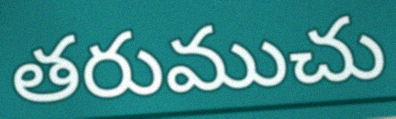
తరుముచు